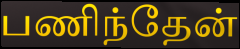
பணிந்தேன்